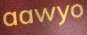
aawyo